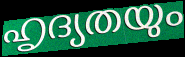
ഹൃദ്യതയും